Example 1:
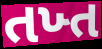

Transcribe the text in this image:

તખ્ત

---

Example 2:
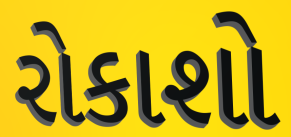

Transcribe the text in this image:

રોકાશો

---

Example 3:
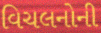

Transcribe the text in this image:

વિચલનોની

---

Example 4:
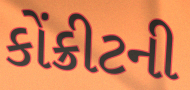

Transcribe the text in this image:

કોંક્રીટની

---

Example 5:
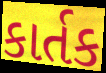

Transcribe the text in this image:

કાર્તક